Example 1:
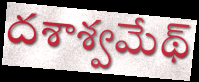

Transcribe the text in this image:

దశాశ్వమేథ్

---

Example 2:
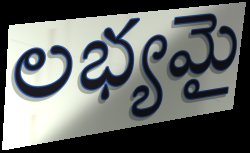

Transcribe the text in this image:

లభ్యమై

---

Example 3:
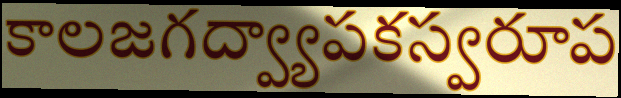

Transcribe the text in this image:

కాలజగద్వ్యాపకస్వరూప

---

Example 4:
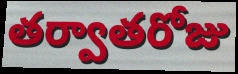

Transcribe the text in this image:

తర్వాతరోజు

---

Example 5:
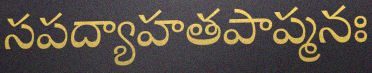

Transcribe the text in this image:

సపద్యాహతపాప్మనః